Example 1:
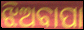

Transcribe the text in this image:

ଝିଅବାପା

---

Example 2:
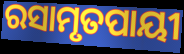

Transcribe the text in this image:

ରସାମୃତପାୟୀ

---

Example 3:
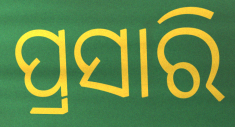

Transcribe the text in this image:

ପ୍ରସାରି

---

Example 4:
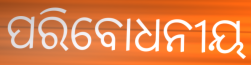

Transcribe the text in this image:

ପରିବୋଧନୀୟ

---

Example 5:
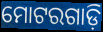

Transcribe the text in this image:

ମୋଟରଗାଡ଼ି